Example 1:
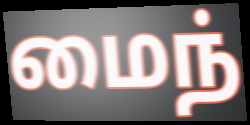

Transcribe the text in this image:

மைந்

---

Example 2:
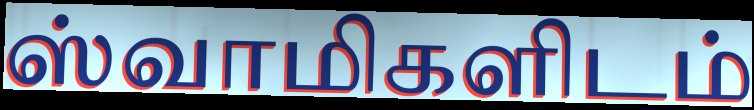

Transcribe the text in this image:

ஸ்வாமிகளிடம்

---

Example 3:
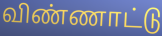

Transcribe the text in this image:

விண்ணாட்டு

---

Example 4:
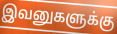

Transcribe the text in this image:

இவனுகளுக்கு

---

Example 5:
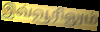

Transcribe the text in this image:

இவ்வூரிலும்